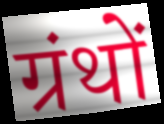
ग्रंथों